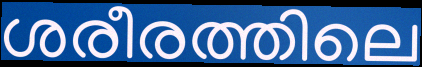
ശരീരത്തിലെ